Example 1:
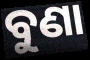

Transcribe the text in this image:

ବୁଣା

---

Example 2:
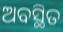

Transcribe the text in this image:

ଅବସ୍ଥିତ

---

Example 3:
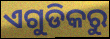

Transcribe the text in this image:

ଏଗୁଡିକରୁ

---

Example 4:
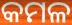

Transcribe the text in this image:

କମଳ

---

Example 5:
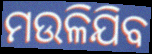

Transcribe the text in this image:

ମଉଳିଯିବ